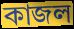
কাজল